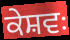
ਕੇਸ਼ਵਃ